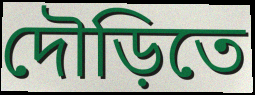
দৌড়িতে